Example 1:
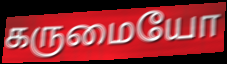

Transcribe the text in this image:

கருமையோ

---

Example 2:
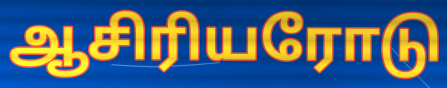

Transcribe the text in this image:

ஆசிரியரோடு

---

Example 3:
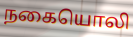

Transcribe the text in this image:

நகையொலி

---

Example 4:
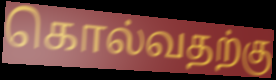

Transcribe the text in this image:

கொல்வதற்கு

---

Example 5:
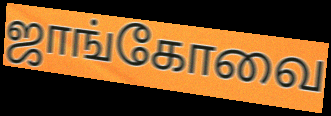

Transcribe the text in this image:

ஜாங்கோவை